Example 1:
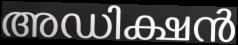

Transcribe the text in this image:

അഡിക്ഷൻ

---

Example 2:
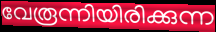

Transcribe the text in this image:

വേരൂന്നിയിരിക്കുന്ന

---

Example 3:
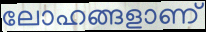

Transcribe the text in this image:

ലോഹങ്ങളാണ്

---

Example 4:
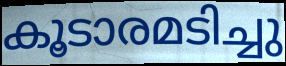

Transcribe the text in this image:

കൂടാരമടിച്ചു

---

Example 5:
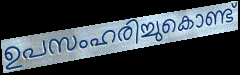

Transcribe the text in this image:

ഉപസംഹരിച്ചുകൊണ്ട്